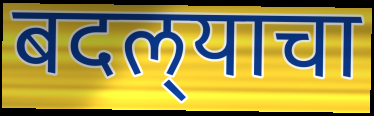
बदल्याचा